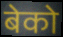
बेको